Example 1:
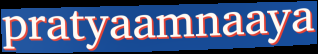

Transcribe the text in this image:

pratyaamnaaya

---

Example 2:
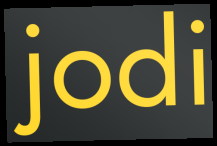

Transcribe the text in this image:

jodi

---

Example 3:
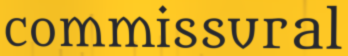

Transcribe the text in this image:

commissural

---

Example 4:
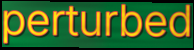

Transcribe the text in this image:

perturbed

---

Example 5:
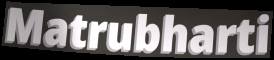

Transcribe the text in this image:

Matrubharti